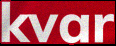
kvar